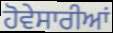
ਹੋਵੇਸਾਰੀਆਂ